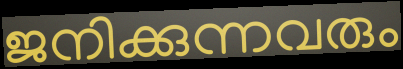
ജനിക്കുന്നവരും